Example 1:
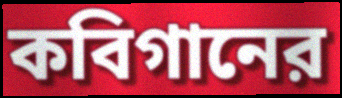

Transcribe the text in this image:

কবিগানের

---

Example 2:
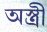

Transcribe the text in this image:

অস্ত্রী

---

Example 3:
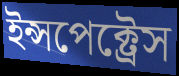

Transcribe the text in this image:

ইন্সপেক্ট্রেস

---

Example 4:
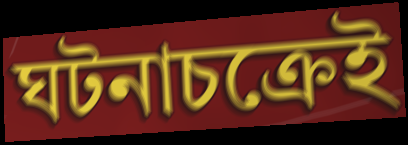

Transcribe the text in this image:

ঘটনাচক্রেই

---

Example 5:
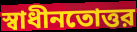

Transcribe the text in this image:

স্বাধীনতোত্তর